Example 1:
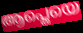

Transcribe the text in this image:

ആപ്തെയെ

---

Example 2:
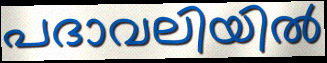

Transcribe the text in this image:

പദാവലിയിൽ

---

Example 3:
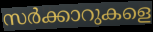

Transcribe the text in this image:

സർക്കാറുകളെ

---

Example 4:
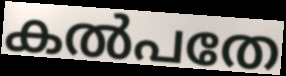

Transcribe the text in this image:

കൽപതേ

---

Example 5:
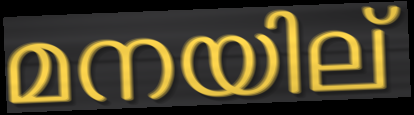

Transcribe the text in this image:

മനയില്